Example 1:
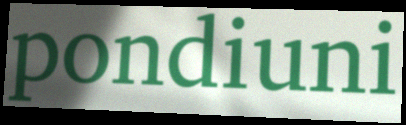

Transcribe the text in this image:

pondiuni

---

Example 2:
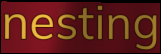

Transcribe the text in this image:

nesting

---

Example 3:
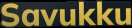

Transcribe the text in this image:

Savukku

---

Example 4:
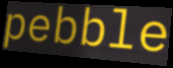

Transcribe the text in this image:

pebble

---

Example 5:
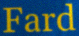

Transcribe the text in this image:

Fard